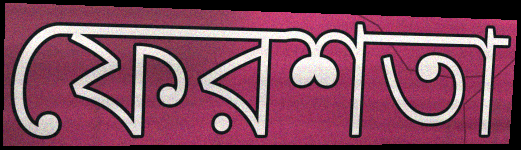
ফেরশতা